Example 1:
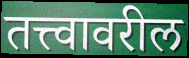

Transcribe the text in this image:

तत्त्वावरील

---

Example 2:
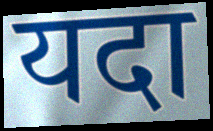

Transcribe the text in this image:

यदा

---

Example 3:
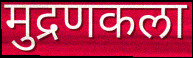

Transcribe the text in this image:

मुद्रणकला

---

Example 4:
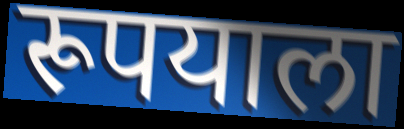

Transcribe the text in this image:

रूपयाला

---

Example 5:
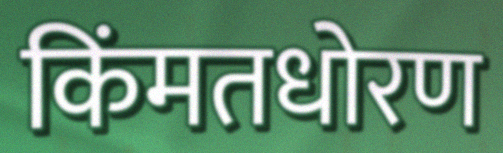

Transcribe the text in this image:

किंमतधोरण